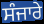
ਸੰਜਾਰੇ